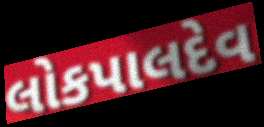
લોકપાલદેવ